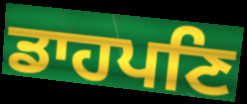
ਡਾਹਪਣਿ